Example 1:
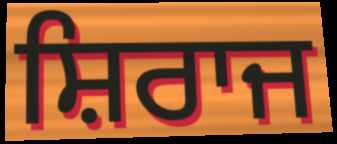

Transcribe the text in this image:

ਸ਼ਿਰਾਜ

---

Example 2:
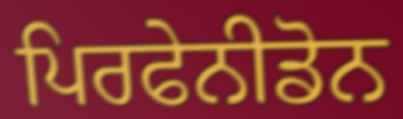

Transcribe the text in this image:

ਪਿਰਫੇਨੀਡੋਨ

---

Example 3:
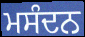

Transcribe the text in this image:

ਮਸੰਦਨ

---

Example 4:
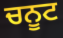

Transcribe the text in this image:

ਚਨੂਟ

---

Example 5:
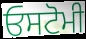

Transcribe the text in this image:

ਓਸਟੋਮੀ